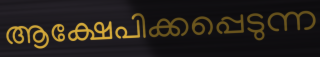
ആക്ഷേപിക്കപ്പെടുന്ന